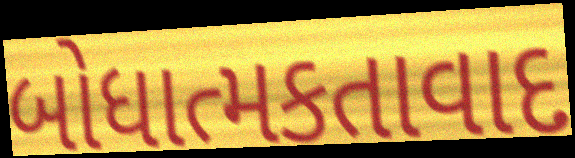
બોધાત્મકતાવાદ